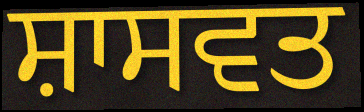
ਸ਼ਾਸਵਤ